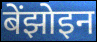
बेंझोइन